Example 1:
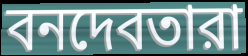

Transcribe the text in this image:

বনদেবতারা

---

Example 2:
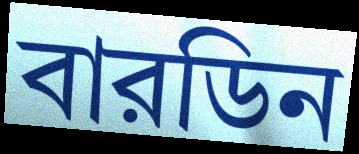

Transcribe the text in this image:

বারডিন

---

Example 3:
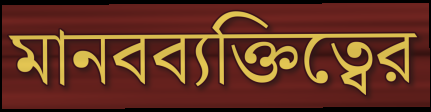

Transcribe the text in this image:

মানবব্যক্তিত্বের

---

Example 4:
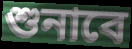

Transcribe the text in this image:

শুনাবে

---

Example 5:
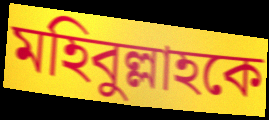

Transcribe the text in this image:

মহিবুল্লাহকে